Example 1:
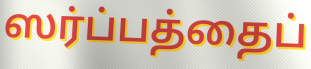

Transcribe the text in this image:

ஸர்ப்பத்தைப்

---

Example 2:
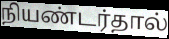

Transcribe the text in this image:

நியண்டர்தால்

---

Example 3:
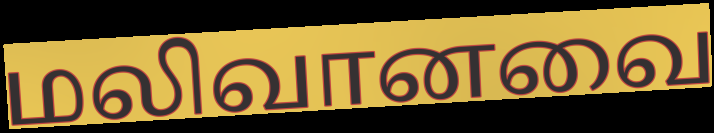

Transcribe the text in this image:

மலிவானவை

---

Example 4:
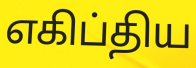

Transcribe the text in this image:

எகிப்திய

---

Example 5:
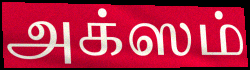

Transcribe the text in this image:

அக்ஸம்